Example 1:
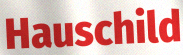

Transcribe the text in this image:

Hauschild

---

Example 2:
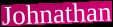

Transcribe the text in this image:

Johnathan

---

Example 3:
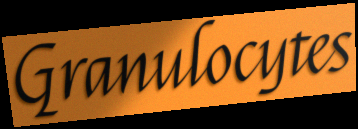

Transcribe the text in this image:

Granulocytes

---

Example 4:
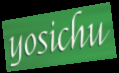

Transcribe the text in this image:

yosichu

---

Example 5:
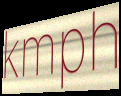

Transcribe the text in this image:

kmph